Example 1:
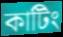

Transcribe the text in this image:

কাটিং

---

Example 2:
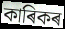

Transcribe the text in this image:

কাৰিকৰ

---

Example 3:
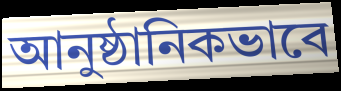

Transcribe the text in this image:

আনুষ্ঠানিকভাবে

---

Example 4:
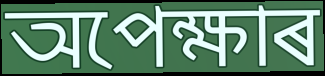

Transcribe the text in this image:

অপেক্ষাৰ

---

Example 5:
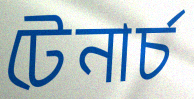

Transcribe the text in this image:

টেনাৰ্চ